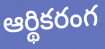
ఆర్థికరంగ